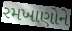
રમખાણોને